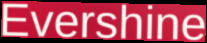
Evershine